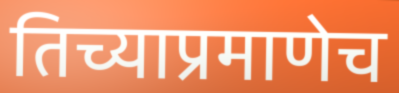
तिच्याप्रमाणेच